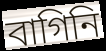
বাগিনি